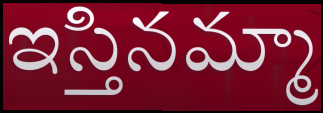
ఇస్తినమ్మా